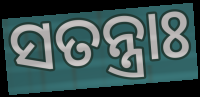
ସତନ୍ତ୍ରାଃ